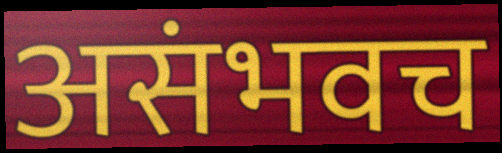
असंभवच